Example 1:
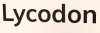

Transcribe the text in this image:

Lycodon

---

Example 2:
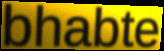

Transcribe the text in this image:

bhabte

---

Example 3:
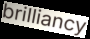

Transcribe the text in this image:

brilliancy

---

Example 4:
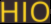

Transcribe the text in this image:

HIO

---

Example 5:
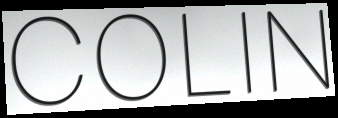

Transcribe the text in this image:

COLIN